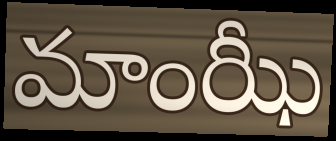
మాంఝీ